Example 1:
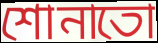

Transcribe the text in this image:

শোনাতো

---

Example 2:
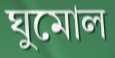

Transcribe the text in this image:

ঘুমোল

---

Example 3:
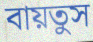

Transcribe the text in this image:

বায়তুস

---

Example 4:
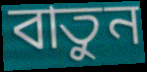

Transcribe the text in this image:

বাতুন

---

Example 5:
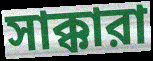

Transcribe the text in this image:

সাক্কারা